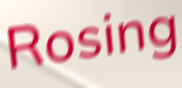
Rosing